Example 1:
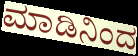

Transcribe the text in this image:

ಮಾಡಿನಿಂದ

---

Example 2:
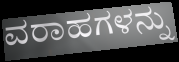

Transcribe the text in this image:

ವರಾಹಗಳನ್ನು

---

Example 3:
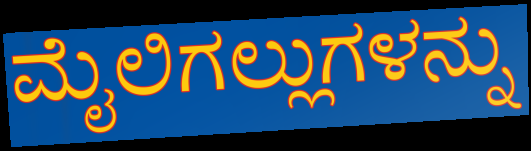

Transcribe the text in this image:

ಮೈಲಿಗಲ್ಲುಗಳನ್ನು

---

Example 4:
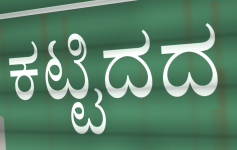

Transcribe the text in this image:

ಕಟ್ಟಿದದ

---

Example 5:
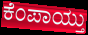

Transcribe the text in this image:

ಕೆಂಪಾಯ್ತು